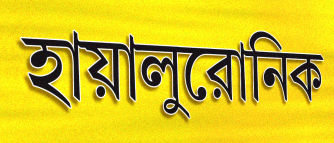
হায়ালুরোনিক